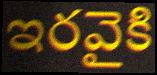
ఇరవైకి